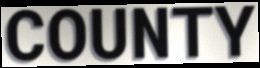
COUNTY